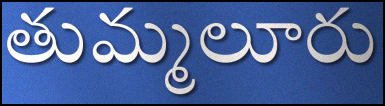
తుమ్మలూరు